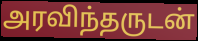
அரவிந்தருடன்